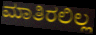
ಮಾತಿರಲಿಲ್ಲ